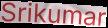
Srikumar